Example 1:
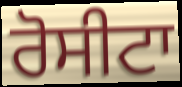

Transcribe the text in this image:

ਰੋਸੀਟਾ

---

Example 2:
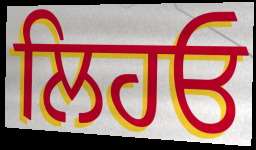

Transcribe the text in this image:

ਲਿਹਓ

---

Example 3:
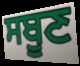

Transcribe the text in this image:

ਸਬੂਣ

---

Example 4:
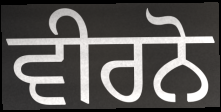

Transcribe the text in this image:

ਵੀਰਨੋ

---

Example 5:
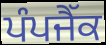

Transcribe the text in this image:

ਪੰਪਜੈੱਕ